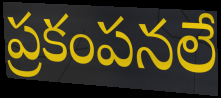
ప్రకంపనలే